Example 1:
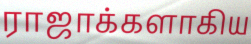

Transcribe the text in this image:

ராஜாக்களாகிய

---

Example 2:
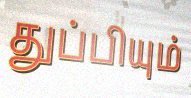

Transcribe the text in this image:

துப்பியும்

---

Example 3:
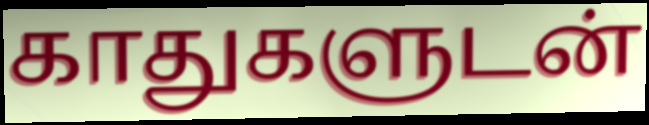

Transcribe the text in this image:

காதுகளுடன்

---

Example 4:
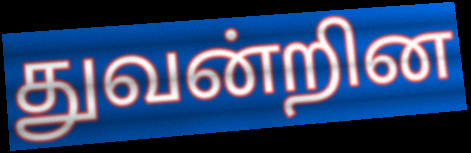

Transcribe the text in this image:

துவன்றின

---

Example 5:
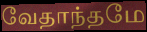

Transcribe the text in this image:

வேதாந்தமே